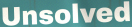
Unsolved